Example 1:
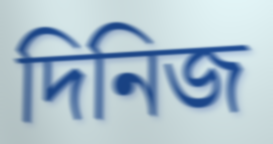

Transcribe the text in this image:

দিনিজ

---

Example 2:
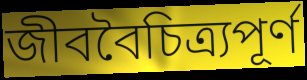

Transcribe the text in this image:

জীববৈচিত্র্যপূর্ণ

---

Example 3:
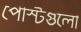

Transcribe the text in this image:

পোস্টগুলো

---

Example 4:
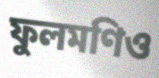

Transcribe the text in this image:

ফুলমণিও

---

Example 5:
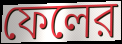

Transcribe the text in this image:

ফেলের